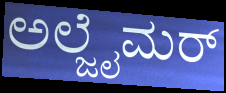
ಅಲ್ಜೈಮರ್